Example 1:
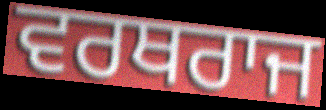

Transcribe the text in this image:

ਵਰਥਰਾਜ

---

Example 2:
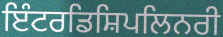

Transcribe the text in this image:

ਇੰਟਰਡਿਸ਼ਿਪਲਿਨਰੀ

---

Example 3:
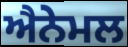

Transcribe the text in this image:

ਐਨੇਮਲ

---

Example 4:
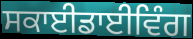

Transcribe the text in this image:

ਸਕਾਈਡਾਈਵਿੰਗ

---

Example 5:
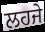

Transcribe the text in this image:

ਲਹਜੇ